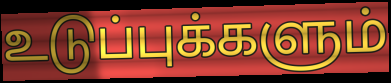
உடுப்புக்களும்